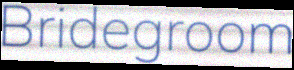
Bridegroom